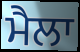
ਮੈਲਾ